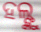
ହଲ୍ଙ୍କୁ